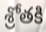
శ్రోతకి